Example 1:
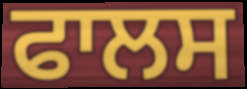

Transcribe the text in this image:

ਫਾਲਸ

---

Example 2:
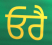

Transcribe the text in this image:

ਓਰੈ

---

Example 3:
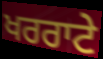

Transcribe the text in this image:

ਖਰਰਾਟੇ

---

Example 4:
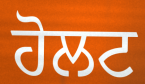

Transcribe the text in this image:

ਹੋਲਟ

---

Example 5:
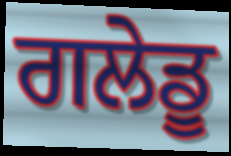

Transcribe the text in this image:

ਗਲੇਡੂ